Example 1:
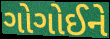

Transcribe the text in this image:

ગોગોઈને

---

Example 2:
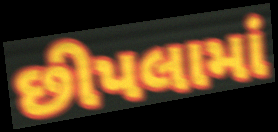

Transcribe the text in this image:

છીપલામાં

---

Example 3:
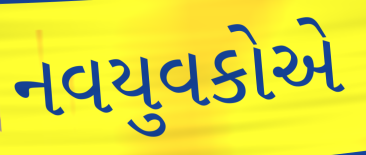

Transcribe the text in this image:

નવયુવકોએ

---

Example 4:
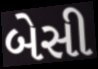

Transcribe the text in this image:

બેસી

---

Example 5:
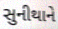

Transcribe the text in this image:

સુનીથાને